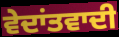
ਵੇਦਾਂਤਵਾਦੀ